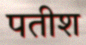
पतीश